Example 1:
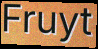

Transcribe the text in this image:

Fruyt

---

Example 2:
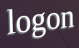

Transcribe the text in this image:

logon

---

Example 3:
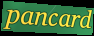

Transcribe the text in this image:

pancard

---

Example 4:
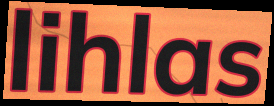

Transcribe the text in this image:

lihlas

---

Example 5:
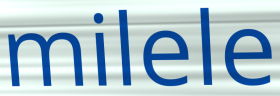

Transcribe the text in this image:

milele